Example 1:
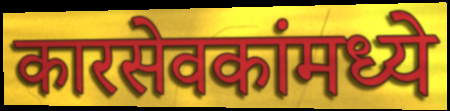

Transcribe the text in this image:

कारसेवकांमध्ये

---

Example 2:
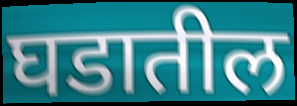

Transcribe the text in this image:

घडातील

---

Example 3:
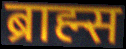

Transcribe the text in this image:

ब्राह्म्स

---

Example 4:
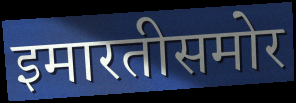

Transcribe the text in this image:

इमारतीसमोर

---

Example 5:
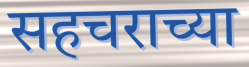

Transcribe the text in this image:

सहचराच्या